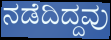
ನಡೆದಿದ್ದವು